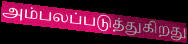
அம்பலப்படுத்துகிறது